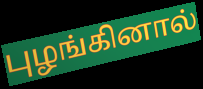
புழங்கினால்